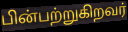
பின்பற்றுகிறவர்